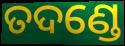
ତଦଣ୍ଡେ